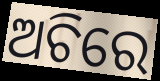
ଅଚିରେ